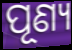
ପୂଣ୍ୟ